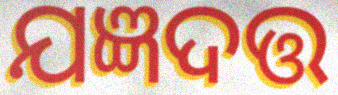
ଯଜ୍ଞଦତ୍ତ